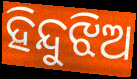
ହିନ୍ଦୁଝିଅ